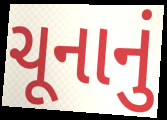
ચૂનાનું